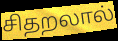
சிதறலால்